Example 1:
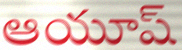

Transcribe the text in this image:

ఆయూష్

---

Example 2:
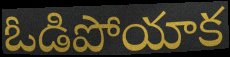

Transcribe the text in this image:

ఓడిపోయాక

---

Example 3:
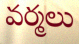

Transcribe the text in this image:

వర్మలు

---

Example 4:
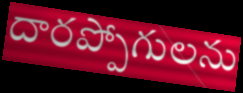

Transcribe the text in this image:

దారప్పోగులను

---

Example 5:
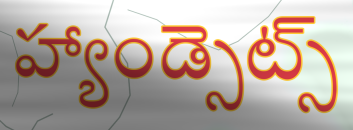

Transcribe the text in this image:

హ్యాండ్సెట్స్